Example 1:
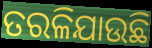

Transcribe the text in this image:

ତରଳିଯାଉଛି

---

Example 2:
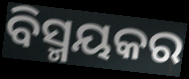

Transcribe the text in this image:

ବିସ୍ମୟକର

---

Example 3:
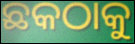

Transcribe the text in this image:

ଛକଠାକୁ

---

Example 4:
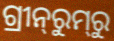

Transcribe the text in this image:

ଗ୍ରୀନ୍‌ରୁମ୍‌ରୁ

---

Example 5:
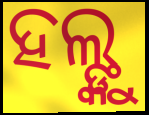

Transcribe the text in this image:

ହଲ୍ଙ୍କୁ